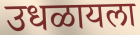
उधळायला